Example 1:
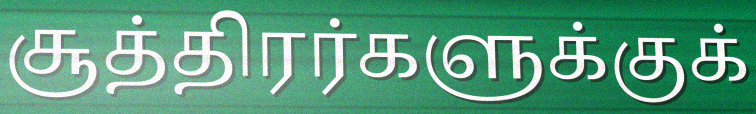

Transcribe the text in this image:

சூத்திரர்களுக்குக்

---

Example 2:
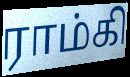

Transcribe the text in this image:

ராம்கி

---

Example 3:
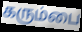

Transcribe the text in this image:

கரும்பை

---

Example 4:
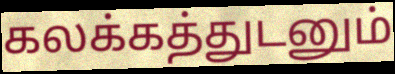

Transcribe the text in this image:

கலக்கத்துடனும்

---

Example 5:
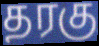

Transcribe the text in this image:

தரகு